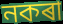
নকৰা